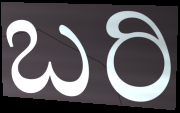
ಬರಿ